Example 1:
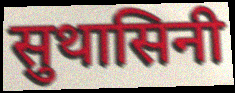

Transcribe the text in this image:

सुथासिनी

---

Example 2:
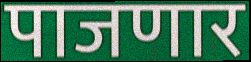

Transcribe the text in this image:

पाजणार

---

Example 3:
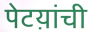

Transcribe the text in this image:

पेटय़ांची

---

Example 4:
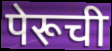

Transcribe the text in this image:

पेरूची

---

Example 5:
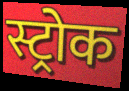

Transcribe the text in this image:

स्ट्रोक